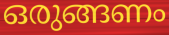
ഒരുങ്ങണം